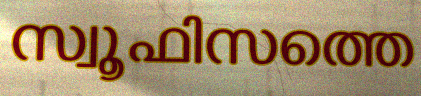
സ്വൂഫിസത്തെ